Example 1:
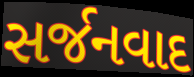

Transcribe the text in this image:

સર્જનવાદ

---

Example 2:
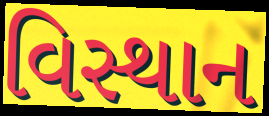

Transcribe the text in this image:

વિસ્થાન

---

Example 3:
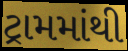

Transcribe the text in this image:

ટ્રામમાંથી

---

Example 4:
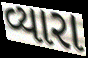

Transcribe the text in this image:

વ્યારા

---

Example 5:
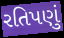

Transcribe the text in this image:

રતિપણું